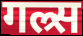
गल्र्स